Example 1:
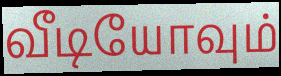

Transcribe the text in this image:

வீடியோவும்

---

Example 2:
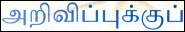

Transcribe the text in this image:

அறிவிப்புக்குப்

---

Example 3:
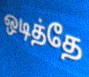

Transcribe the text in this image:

ஒடித்தே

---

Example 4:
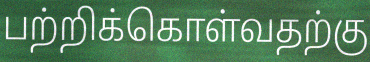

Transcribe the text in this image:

பற்றிக்கொள்வதற்கு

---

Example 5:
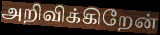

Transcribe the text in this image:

அறிவிக்கிறேன்